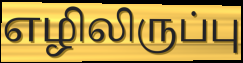
எழிலிருப்பு